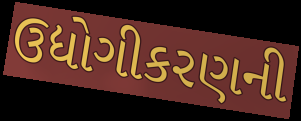
ઉદ્યોગીકરણની